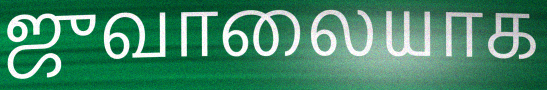
ஜுவாலையாக